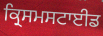
ਕ੍ਰਿਸਮਸਟਾਈਡ